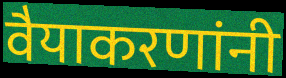
वैयाकरणांनी